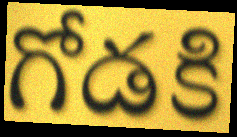
గోడకి